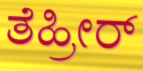
ತೆಹ್ರೀರ್